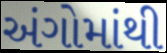
અંગોમાંથી